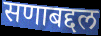
सणाबद्दल